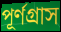
পূর্ণগ্রাস